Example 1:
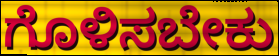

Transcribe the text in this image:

ಗೊಳಿಸಬೇಕು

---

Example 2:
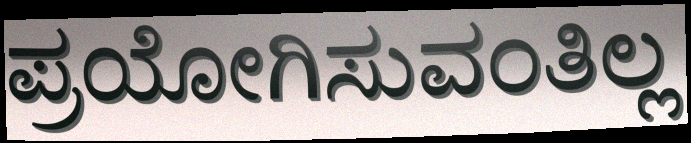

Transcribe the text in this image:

ಪ್ರಯೋಗಿಸುವಂತಿಲ್ಲ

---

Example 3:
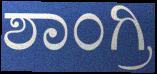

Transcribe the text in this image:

ಶಾಂಗ್ರಿ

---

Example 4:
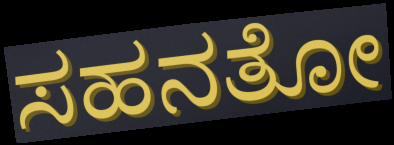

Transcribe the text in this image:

ಸಹನತೋ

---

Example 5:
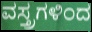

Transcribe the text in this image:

ವಸ್ತ್ರಗಳಿಂದ